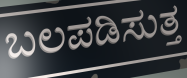
ಬಲಪಡಿಸುತ್ತ